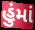
હુંમાં